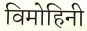
विमोहिनी